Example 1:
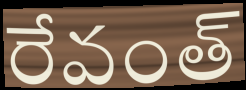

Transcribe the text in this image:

రేవంత్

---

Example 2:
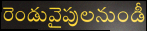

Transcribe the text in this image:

రెండువైపులనుండీ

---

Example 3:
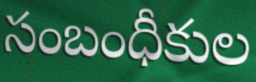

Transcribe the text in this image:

సంబంధీకుల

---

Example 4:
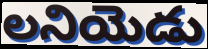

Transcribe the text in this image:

లనియెడు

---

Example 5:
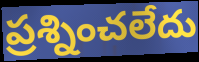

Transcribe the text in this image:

ప్రశ్నించలేదు